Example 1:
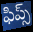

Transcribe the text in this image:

ఫిప్స్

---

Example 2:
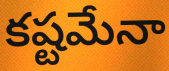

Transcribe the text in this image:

కష్టమేనా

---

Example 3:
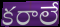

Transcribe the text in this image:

కరాలే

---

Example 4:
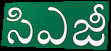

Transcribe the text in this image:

సిఎజీ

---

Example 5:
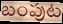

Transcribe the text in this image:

బంపుట